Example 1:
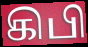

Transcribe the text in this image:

கிபி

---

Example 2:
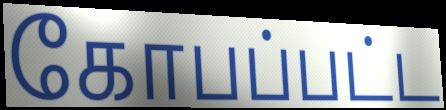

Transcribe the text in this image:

கோபப்பட்ட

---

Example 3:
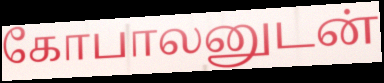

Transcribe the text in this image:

கோபாலனுடன்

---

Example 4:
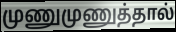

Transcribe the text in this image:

முணுமுணுத்தால்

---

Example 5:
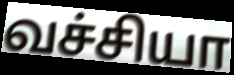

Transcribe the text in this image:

வச்சியா